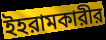
ইহরামকারীর